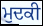
ਮੁਦਕੀ